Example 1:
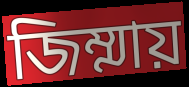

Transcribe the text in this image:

জিম্মায়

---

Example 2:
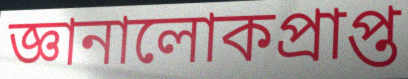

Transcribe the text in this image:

জ্ঞানালোকপ্রাপ্ত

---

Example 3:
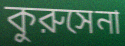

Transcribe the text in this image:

কুরুসেনা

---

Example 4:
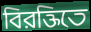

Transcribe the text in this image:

বিরক্তিতে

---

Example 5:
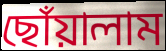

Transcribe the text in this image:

ছোঁয়ালাম